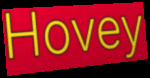
Hovey